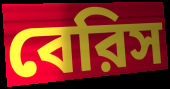
বেরিস